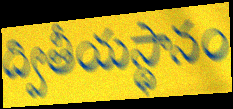
ద్వితీయస్థానం